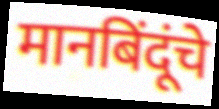
मानबिंदूंचे